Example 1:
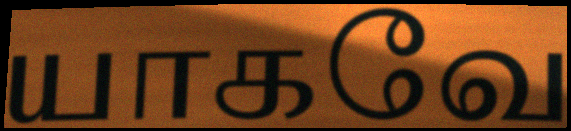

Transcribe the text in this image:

யாகவே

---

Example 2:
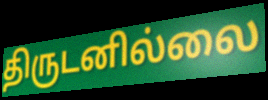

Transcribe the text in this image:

திருடனில்லை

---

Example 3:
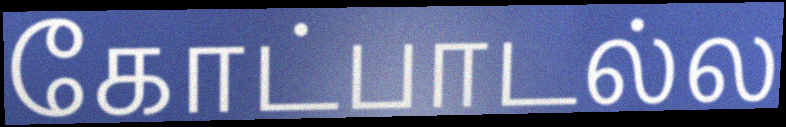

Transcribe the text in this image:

கோட்பாடல்ல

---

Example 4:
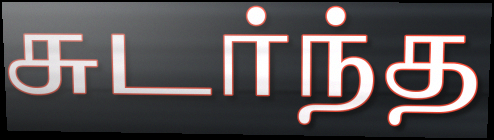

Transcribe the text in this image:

சுடர்ந்த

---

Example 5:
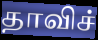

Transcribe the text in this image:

தாவிச்